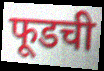
फूडची